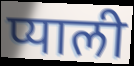
प्याली